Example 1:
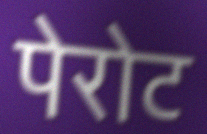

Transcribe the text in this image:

पेरोट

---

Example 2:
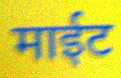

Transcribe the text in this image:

माईट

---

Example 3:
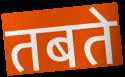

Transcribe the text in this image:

तबते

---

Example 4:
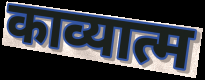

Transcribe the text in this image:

काव्यात्म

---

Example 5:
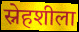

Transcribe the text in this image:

स्नेहशीला